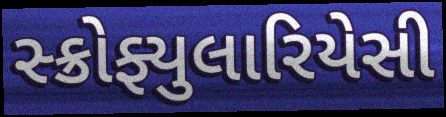
સ્ક્રોફ્યુલારિયેસી